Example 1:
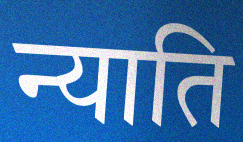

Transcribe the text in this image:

न्याति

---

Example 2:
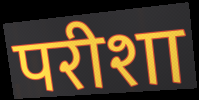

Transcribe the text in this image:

परीशा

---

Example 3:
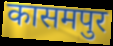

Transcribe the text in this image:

कासमपुर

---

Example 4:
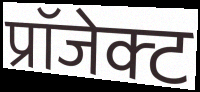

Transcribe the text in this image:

प्रॉजेक्‍ट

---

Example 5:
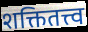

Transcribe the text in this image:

शक्तितत्त्व